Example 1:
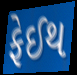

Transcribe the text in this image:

ફેઈથ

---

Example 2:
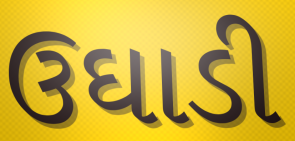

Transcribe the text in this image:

ઉઘાડી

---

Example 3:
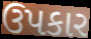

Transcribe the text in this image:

ઉપકાર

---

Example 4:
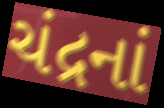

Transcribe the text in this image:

ચંદ્રનાં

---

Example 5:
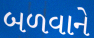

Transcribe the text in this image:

બળવાને